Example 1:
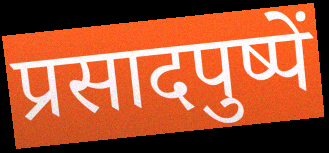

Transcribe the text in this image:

प्रसादपुष्पें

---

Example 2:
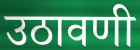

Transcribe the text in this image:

उठावणी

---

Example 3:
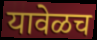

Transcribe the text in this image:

यावेळच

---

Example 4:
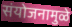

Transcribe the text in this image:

संयोजनामुळे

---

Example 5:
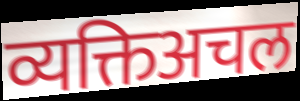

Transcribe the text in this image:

व्यक्तिअचल